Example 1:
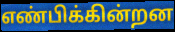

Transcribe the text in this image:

எண்பிக்கின்றன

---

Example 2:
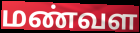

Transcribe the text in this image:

மண்வள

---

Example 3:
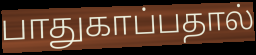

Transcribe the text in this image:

பாதுகாப்பதால்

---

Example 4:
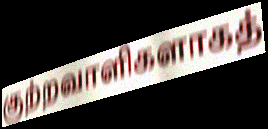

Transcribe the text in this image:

குற்றவாளிகளாகத்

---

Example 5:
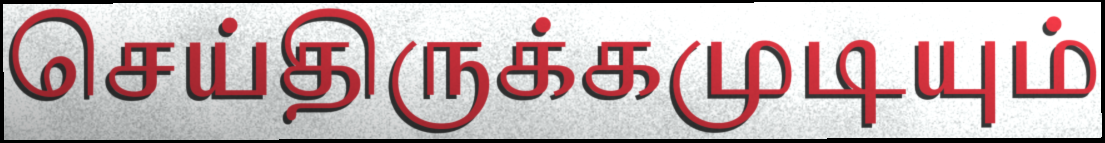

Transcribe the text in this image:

செய்திருக்கமுடியும்